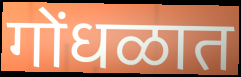
गोंधळात